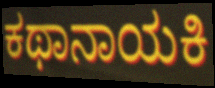
ಕಥಾನಾಯಕಿ